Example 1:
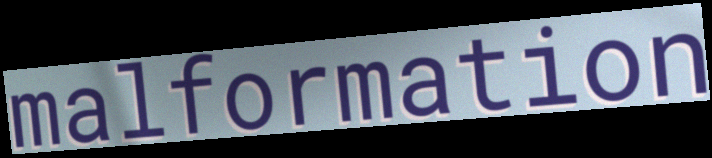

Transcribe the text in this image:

malformation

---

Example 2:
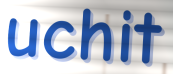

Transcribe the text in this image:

uchit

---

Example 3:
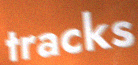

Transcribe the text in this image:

tracks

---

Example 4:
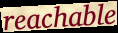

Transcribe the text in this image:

reachable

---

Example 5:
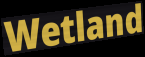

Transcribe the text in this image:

Wetland